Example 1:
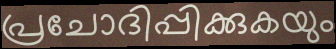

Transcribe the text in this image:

പ്രചോദിപ്പിക്കുകയും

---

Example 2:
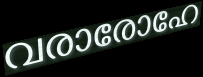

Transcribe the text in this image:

വരാരോഹേ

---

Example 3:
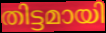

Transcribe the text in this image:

തിട്ടമായി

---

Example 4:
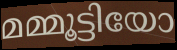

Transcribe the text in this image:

മമ്മൂട്ടിയോ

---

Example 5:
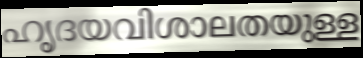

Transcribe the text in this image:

ഹൃദയവിശാലതയുള്ള